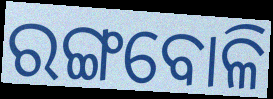
ରଙ୍ଗବୋଳି